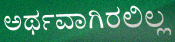
ಅರ್ಥವಾಗಿರಲಿಲ್ಲ